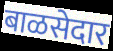
बाळसेदार